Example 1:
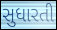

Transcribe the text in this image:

સુધારતી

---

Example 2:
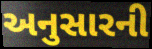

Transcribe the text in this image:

અનુસારની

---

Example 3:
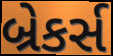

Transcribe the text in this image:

બ્રેકર્સ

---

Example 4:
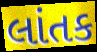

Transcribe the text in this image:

લાંતક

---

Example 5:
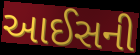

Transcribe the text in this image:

આઈસની